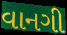
વાનગી